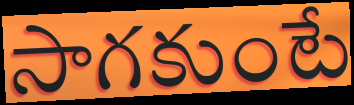
సాగకుంటే